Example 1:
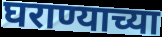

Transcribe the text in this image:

घराण्याच्या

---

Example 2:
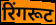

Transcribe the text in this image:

रिंगरूट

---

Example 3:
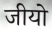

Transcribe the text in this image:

जीयो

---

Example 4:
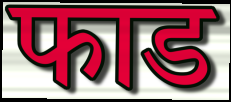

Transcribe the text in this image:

फाड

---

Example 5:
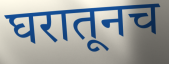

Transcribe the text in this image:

घरातूनच